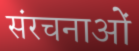
संरचनाओं